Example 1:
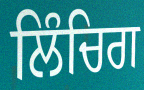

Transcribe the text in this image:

ਲਿੰਚਿਗ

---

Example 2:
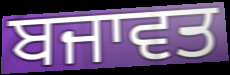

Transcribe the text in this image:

ਬਜਾਵਤ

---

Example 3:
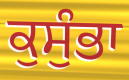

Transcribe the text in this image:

ਕੁਸੁੰਭਾ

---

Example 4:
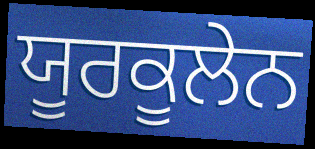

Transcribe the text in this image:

ਯੂਰਕੂਲੇਨ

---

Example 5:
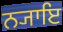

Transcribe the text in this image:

ਨ੍ਯਾਇ